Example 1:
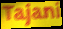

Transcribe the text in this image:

Tajani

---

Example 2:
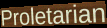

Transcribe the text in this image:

Proletarian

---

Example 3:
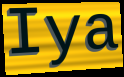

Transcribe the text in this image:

Iya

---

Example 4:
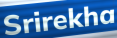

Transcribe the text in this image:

Srirekha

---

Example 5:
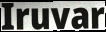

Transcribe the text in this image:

Iruvar